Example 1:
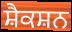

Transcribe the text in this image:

ਸ਼ੈਕਸ਼ਨ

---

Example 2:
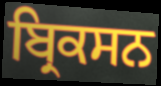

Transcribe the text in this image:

ਬ੍ਰਿਕਸਨ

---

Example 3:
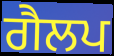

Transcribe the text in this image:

ਗੈਲਪ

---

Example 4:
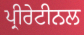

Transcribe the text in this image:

ਪ੍ਰੀਰੇਟੀਨਲ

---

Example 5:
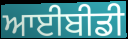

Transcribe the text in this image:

ਆਈਬੀਡੀ